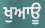
ਖੁਆਊ